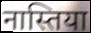
नास्तिया